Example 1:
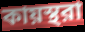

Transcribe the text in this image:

কায়স্থরা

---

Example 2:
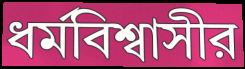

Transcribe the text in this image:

ধর্মবিশ্বাসীর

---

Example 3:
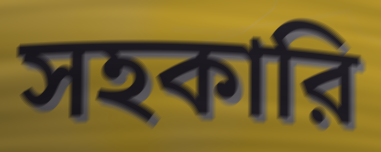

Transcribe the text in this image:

সহকারি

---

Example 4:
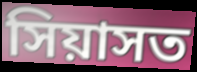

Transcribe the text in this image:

সিয়াসত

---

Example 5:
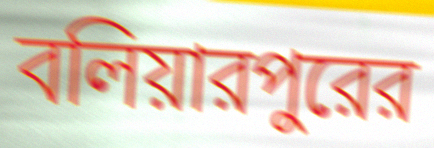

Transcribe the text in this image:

বলিয়ারপুরের